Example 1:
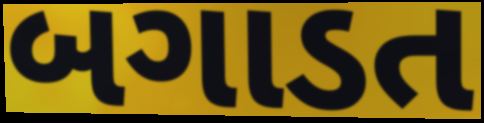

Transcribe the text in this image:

બગાડત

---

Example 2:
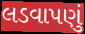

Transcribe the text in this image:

લડવાપણું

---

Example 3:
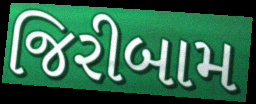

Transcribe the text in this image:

જિરીબામ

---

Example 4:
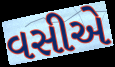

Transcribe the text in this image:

વસીએ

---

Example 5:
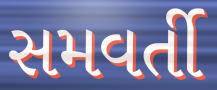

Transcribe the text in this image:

સમવર્તી